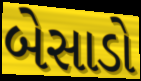
બેસાડો